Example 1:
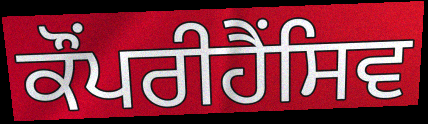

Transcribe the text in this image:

ਕੌਂਪਰੀਹੈਂਸਿਵ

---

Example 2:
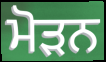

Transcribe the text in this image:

ਮੋੜਨ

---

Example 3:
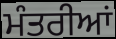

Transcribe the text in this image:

ਮੰਤਰੀਆਂ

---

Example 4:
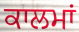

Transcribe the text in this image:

ਕਾਲਮਾਂ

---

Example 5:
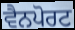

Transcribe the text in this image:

ਵੈਨਪੋਰਟ